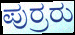
ಪುರ್ರರು